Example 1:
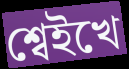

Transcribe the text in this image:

শ্বেইখে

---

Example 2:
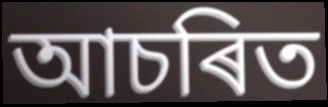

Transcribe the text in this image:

আচৰিত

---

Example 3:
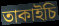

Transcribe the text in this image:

তাকাইচি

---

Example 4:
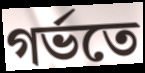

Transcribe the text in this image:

গৰ্ভতে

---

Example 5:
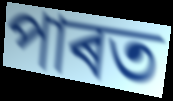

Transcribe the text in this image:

পাৰত